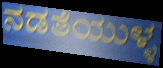
ನಡತೆಯುಳ್ಳ